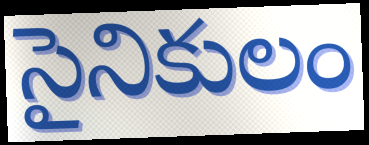
సైనికులం